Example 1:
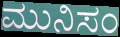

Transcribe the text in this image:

ಮುನಿಸಂ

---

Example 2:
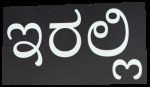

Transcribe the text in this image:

ಇರಲ್ಲಿ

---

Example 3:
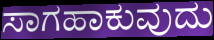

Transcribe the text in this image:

ಸಾಗಹಾಕುವುದು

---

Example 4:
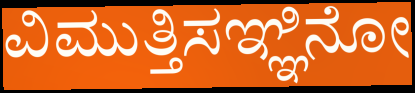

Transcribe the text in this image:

ವಿಮುತ್ತಿಸಞ್ಞಿನೋ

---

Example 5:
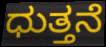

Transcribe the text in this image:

ಧುತ್ತನೆ